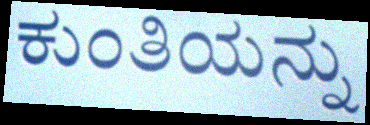
ಕುಂತಿಯನ್ನು